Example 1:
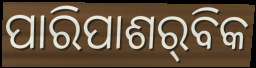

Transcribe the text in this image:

ପାରିପାଶର୍‌ବିକ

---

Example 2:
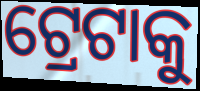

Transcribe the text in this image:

ଟ୍ରେଟାକୁ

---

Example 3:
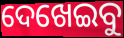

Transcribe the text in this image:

ଦେଖେଇବୁ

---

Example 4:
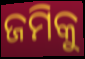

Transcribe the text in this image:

ଜମିକୁ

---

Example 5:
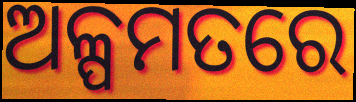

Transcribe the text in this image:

ଅଳ୍ପମତରେ